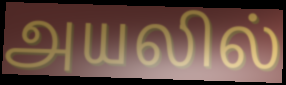
அயலில்